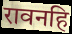
रावनहि